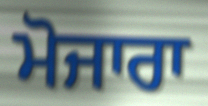
ਮੋਜਾਰਾ